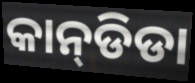
କାନ୍‌ଡିଡା